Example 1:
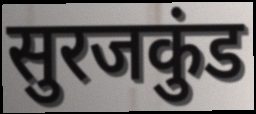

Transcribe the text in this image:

सुरजकुंड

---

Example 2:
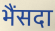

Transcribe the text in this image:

भैंसदा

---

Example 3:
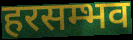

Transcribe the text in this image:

हरसम्भव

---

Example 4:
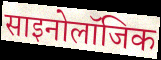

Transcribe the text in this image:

साइनोलॉजिक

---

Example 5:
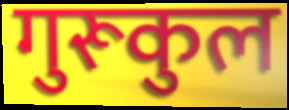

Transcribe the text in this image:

गुरूकुल